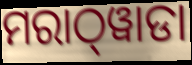
ମରାଠ୍‌ୱାଡା